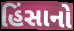
હિંસાનો